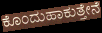
ಕೊಂದುಹಾಕುತ್ತೇನೆ